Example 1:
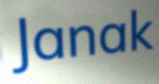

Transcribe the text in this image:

Janak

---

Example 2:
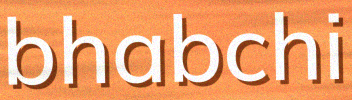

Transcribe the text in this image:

bhabchi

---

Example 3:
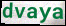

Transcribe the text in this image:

dvaya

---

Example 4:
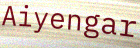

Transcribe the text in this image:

Aiyengar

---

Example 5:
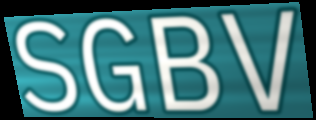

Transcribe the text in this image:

SGBV